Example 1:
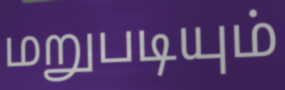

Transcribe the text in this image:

மறுபடியும்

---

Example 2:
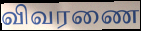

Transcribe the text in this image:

விவரணை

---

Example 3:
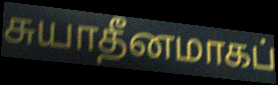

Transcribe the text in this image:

சுயாதீனமாகப்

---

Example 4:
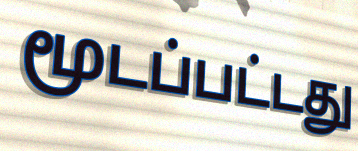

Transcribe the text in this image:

மூடப்பட்டது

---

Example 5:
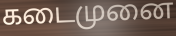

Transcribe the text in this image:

கடைமுனை